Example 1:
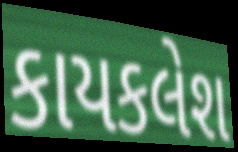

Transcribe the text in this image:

કાયકલેશ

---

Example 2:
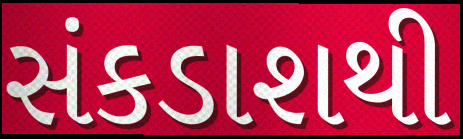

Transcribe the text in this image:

સંકડાશથી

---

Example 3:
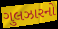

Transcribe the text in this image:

ગુલઝારનો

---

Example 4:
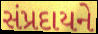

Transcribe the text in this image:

સંપ્રદાયને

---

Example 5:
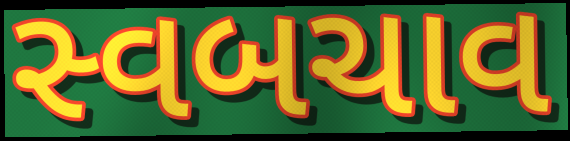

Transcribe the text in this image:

સ્વબચાવ